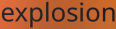
explosion